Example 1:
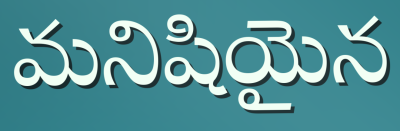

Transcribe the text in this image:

మనిషియైన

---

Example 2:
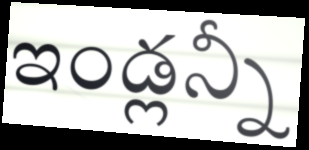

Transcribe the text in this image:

ఇండ్లన్నీ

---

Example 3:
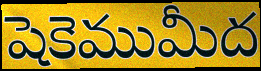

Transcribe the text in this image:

షెకెముమీద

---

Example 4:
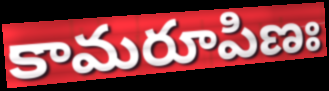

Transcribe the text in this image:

కామరూపిణః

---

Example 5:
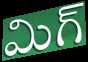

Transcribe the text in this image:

మిగ్